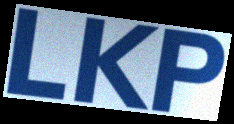
LKP